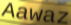
Aawaz